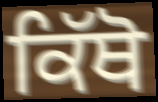
ਕਿੱਥੋ